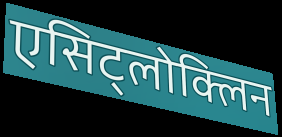
एसिट्लोक्लिन